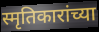
स्मृतिकारांच्या